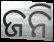
ଜନି